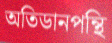
অতিডানপন্থি